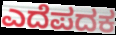
ಎದೆಪದಕ